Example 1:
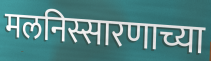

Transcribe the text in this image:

मलनिस्सारणाच्या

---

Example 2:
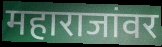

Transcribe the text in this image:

महाराजांवर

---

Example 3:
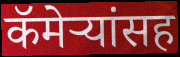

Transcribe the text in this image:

कॅमेऱ्यांसह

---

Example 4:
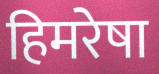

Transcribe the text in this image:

हिमरेषा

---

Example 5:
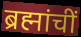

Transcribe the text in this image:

ब्रह्मांचीं